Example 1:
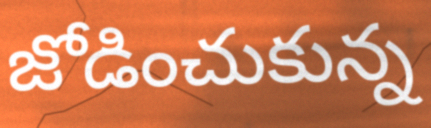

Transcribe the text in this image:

జోడించుకున్న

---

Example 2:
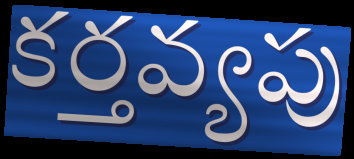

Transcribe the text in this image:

కర్తవ్యపు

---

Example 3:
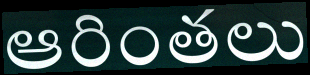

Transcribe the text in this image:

ఆరింతలు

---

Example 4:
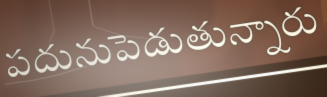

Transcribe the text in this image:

పదునుపెడుతున్నారు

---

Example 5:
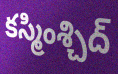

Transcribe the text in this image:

కస్మింశ్చిద్